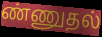
ண்ணுதல்